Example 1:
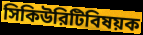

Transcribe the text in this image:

সিকিউরিটিবিষয়ক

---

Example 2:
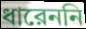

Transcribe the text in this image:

ধারেননি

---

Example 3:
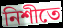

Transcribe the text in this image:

নিশীতে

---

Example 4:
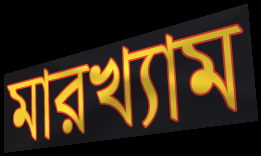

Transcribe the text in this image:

মারখ্যাম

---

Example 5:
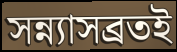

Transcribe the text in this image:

সন্ন্যাসব্রতই